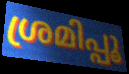
ശ്രമിപ്പൂ